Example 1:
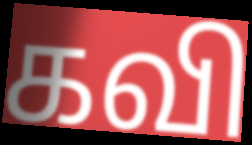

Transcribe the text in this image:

கவி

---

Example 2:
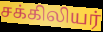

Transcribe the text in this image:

சக்கிலியர்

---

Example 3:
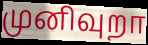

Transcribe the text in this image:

முனிவுறா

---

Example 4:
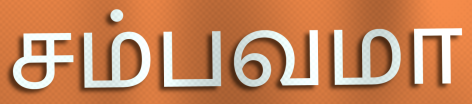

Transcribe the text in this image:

சம்பவமா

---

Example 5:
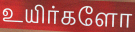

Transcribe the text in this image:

உயிர்களோ